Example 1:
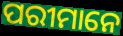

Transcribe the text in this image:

ପରୀମାନେ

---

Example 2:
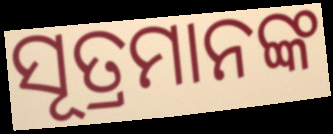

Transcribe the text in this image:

ସୂତ୍ରମାନଙ୍କ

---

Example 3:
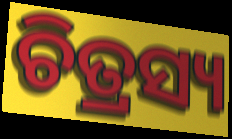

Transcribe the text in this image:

ଚିତ୍ରସ୍ୟ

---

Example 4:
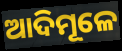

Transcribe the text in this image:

ଆଦିମୂଳେ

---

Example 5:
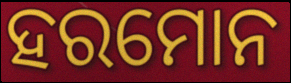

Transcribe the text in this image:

ହରମୋନ